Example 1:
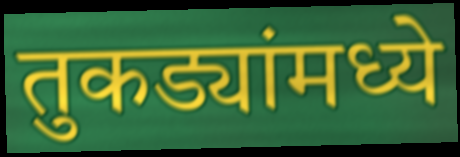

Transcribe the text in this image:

तुकड्यांमध्ये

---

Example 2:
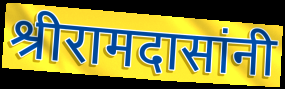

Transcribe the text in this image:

श्रीरामदासांनी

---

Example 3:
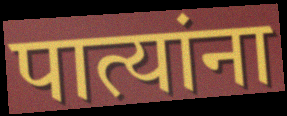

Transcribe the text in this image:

पात्यांना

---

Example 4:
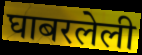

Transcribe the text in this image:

घाबरलेली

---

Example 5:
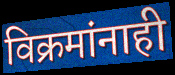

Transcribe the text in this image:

विक्रमांनाही